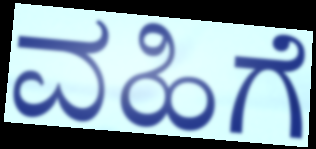
ವಹಿಗೆ